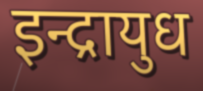
इन्द्रायुध